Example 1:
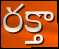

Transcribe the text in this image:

రక్తా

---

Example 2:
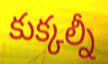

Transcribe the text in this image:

కుక్కల్నీ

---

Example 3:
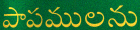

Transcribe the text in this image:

పాపములను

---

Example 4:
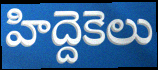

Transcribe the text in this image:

హిద్దెకెలు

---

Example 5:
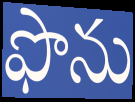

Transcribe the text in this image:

ఫొను